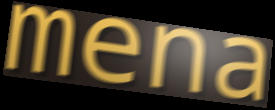
mena